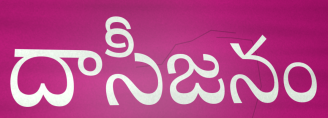
దాసీజనం